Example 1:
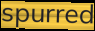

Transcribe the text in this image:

spurred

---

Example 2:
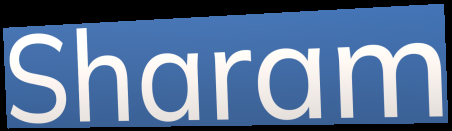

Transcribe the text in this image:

Sharam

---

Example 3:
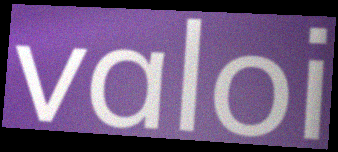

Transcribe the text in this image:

valoi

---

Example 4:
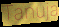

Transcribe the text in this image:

Tanuja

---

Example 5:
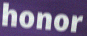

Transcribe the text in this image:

honor